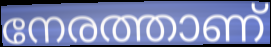
നേരത്താണ്